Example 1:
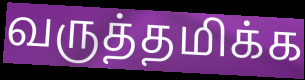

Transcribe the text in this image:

வருத்தமிக்க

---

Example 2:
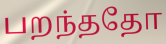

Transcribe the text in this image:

பறந்ததோ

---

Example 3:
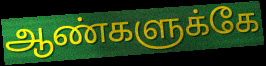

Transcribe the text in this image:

ஆண்களுக்கே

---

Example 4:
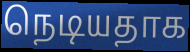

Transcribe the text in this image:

நெடியதாக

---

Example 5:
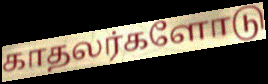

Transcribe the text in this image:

காதலர்களோடு